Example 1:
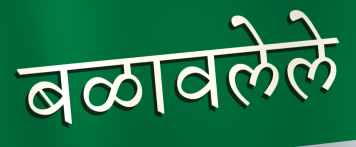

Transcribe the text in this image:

बळावलेले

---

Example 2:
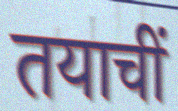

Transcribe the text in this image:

तयाचीं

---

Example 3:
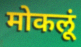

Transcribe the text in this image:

मोकलूं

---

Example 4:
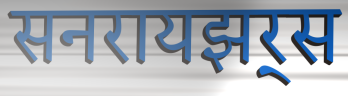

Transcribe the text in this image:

सनरायझर्स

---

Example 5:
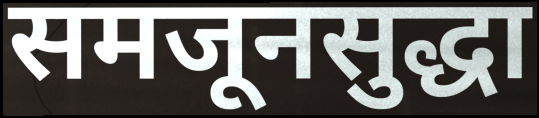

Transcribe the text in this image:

समजूनसुद्धा